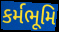
કર્મભૂમિ